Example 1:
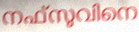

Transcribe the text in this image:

നഫ്സുവിനെ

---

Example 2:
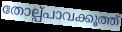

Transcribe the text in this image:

തോല്പ്പാവക്കൂത്ത്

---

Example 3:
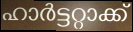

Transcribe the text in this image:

ഹാർട്ടറ്റാക്ക്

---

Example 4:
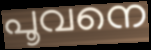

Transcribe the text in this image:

പൂവനെ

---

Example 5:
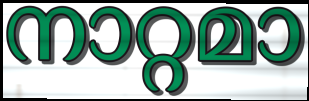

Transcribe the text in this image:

നാറ്റമാ